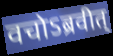
वचोऽब्रवीत्